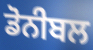
ਡੋਨੀਬਲ